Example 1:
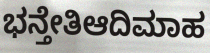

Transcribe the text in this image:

ಭನ್ತೇತಿಆದಿಮಾಹ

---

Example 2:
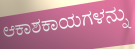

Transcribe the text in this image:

ಆಕಾಶಕಾಯಗಳನ್ನು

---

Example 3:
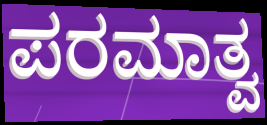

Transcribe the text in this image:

ಪರಮಾತ್ವ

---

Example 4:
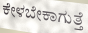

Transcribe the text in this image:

ಕೇಳಬೇಕಾಗುತ್ತೆ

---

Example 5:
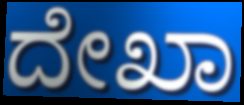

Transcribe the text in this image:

ದೇಖಾ